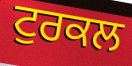
ਟੁਰਕਲ